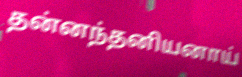
தன்னந்தனியனாய்